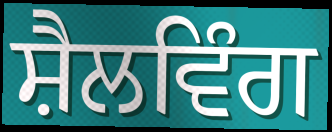
ਸ਼ੈਲਵਿੰਗ